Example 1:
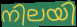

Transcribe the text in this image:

നിലയി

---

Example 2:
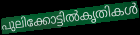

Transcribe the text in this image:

പുലിക്കോട്ടിൽകൃതികൾ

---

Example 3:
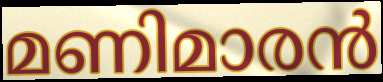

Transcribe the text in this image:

മണിമാരൻ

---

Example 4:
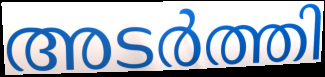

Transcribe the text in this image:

അടർത്തി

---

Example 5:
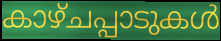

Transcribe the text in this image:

കാഴ്ചപ്പാടുകൾ